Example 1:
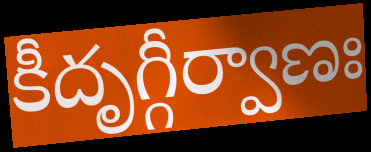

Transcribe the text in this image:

కీదృగ్గీర్వాణః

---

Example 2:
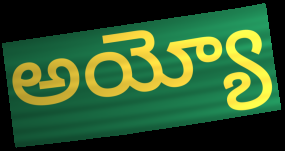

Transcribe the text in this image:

అయ్యో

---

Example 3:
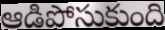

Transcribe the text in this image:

ఆడిపోసుకుంది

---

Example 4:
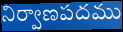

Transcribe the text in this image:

నిర్వాణపదము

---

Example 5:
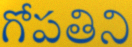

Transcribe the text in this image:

గోపతిని